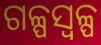
ଗଳ୍ପସ୍ୱଳ୍ପ